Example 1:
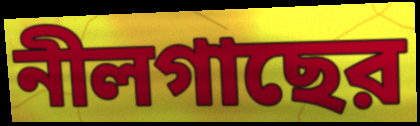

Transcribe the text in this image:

নীলগাছের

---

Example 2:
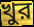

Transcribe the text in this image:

খুর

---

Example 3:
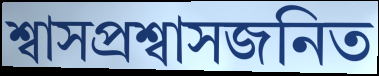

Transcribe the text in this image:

শ্বাসপ্রশ্বাসজনিত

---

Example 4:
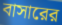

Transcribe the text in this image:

বাসারের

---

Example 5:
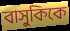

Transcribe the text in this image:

বাসুকিকে